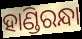
ହାଣ୍ଡିରନ୍ଧା